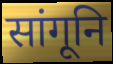
सांगूनि